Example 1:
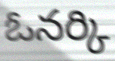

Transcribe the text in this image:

ఓనర్కి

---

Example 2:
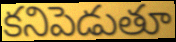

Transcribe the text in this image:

కనిపెడుతూ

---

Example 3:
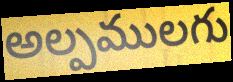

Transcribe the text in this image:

అల్పములగు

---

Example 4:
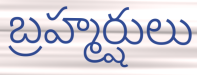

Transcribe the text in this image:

బ్రహ్మర్షులు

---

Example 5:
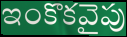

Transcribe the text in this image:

ఇంకొకవైపు